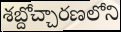
శబ్దోచ్చారణలోని